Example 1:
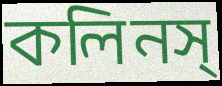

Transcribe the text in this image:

কলিনস্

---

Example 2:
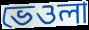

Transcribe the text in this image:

ভেওলা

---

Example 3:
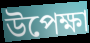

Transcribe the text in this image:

উপেক্ষা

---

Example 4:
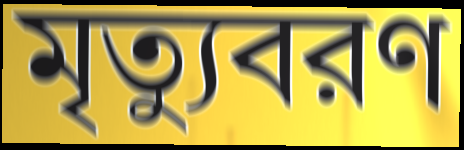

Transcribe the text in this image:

মৃত্যুবরণ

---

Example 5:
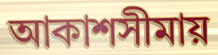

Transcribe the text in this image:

আকাশসীমায়